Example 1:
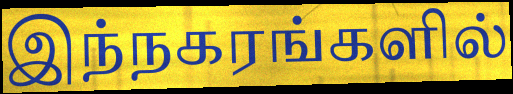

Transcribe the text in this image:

இந்நகரங்களில்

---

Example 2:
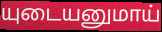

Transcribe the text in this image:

யுடையனுமாய்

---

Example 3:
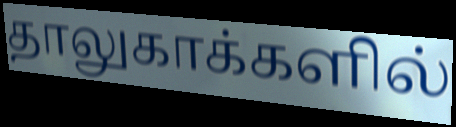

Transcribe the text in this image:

தாலுகாக்களில்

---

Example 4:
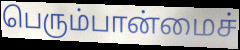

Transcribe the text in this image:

பெரும்பான்மைச்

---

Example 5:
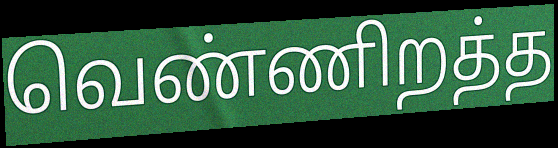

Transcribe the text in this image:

வெண்ணிறத்த